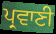
ਪ੍ਰਵਾਣੀ